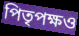
পিতৃপক্ষও